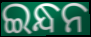
ଇନ୍ଧନ